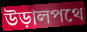
উড়ালপথে